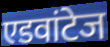
एडवांटेज